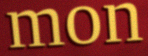
mon